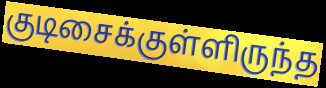
குடிசைக்குள்ளிருந்த